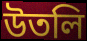
উতলি